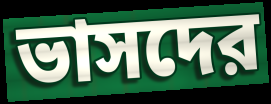
ভাসদের